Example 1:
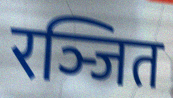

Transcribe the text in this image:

रञ्जित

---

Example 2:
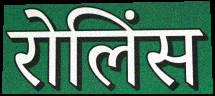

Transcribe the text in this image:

रोलिंस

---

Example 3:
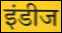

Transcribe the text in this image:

इंडीज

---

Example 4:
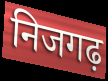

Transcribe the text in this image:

निजगढ़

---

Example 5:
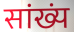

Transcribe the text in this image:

सांख्यं